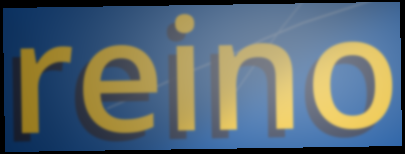
reino